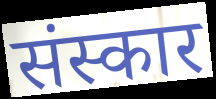
संस्कार